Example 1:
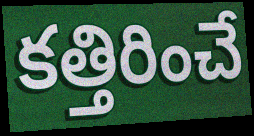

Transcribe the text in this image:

కత్తిరించే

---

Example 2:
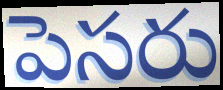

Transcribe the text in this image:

పెసరు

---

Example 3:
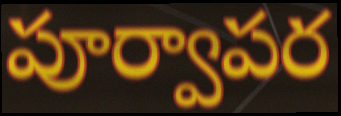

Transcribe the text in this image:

పూర్వాపర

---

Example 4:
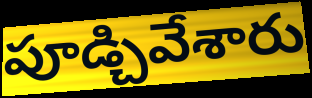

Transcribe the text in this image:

పూడ్చివేశారు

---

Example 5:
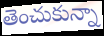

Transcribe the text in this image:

తెంచుకున్నా